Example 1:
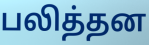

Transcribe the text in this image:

பலித்தன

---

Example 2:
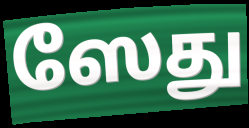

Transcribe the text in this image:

ஸேது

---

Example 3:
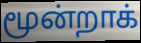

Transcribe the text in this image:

மூன்றாக்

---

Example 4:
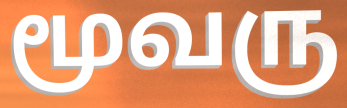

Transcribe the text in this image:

மூவரு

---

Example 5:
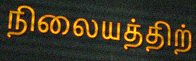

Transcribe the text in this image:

நிலையத்திற்